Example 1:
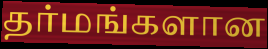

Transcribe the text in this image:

தர்மங்களான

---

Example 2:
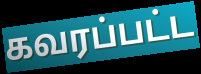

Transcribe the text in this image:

கவரப்பட்ட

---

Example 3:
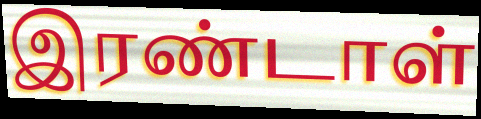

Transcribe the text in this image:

இரண்டாள்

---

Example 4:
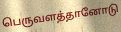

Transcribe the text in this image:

பெருவளத்தானோடு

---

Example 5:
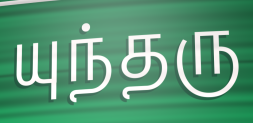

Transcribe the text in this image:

யுந்தரு